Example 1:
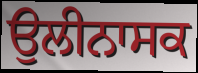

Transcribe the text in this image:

ਉਲੀਨਾਸਕ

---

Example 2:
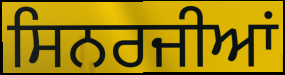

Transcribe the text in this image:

ਸਿਨਰਜੀਆਂ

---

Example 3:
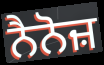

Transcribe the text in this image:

ਨੈਨੋਜ਼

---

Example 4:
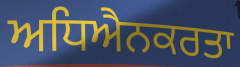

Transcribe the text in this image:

ਅਧਿਐਨਕਰਤਾ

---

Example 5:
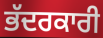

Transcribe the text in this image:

ਭੱਦਰਕਾਰੀ